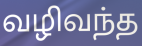
வழிவந்த